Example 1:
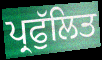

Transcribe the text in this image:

ਪ੍ਰਫੁੱਲਿਤ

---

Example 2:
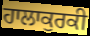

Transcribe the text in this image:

ਹਾਲਾਕੁਰਕੀ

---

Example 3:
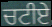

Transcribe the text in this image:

ਚਟੀਏ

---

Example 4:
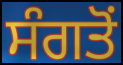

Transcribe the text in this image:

ਸੰਗਤੋਂ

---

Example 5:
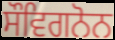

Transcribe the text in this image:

ਸੌਵਿਗਨੋਨ